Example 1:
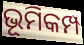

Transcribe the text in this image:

ଭୂମିକମ୍ପ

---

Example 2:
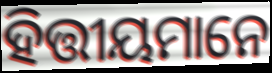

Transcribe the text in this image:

ହିତ୍ତୀୟମାନେ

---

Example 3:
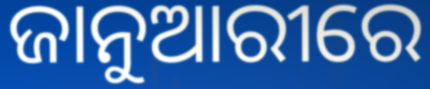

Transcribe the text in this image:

ଜାନୁଆରୀରେ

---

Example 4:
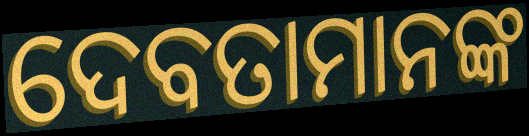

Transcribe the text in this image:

ଦେବତାମାନଙ୍କ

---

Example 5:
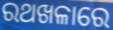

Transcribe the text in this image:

ରଥଖଳାରେ